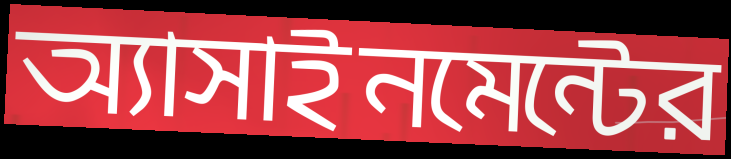
অ্যাসাইনমেন্টের